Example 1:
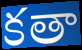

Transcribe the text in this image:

కతా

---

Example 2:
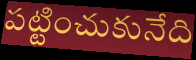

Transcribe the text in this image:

పట్టించుకునేది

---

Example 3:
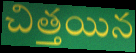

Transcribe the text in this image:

చిత్తయిన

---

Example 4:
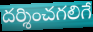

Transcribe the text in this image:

దర్శించగలిగే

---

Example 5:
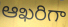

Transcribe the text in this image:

ఆఖరిగా